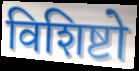
विशिष्टो